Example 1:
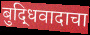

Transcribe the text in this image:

बुद्धिवादाचा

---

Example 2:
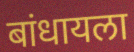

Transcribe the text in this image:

बांधायला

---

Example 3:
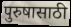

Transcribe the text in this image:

पुरुषासाठी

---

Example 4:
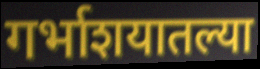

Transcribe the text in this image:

गर्भाशयातल्या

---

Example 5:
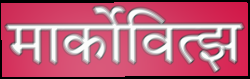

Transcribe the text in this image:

मार्कोवित्झ